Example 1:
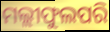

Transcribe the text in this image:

ମଲ୍ଲୀଫୁଲପରି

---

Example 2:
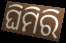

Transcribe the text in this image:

ଘିମିରି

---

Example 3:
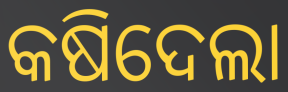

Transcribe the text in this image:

କଷିଦେଲା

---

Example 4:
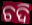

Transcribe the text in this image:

ଚଦି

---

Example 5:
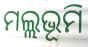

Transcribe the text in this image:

ମଲ୍ଲଭୂମି